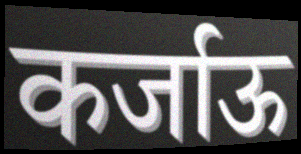
कर्जाऊ